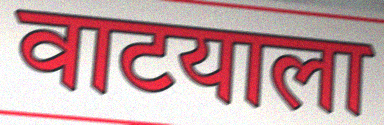
वाटयाला